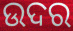
ଉଦର